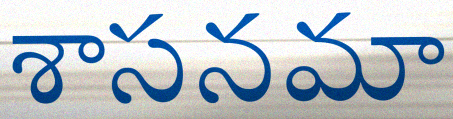
శాసనమా